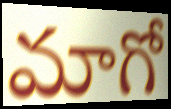
మాగో